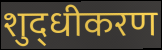
शुद्धीकरण